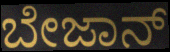
ಬೇಜಾನ್